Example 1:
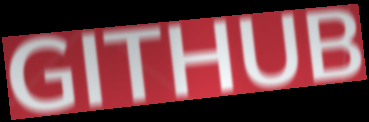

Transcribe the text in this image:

GITHUB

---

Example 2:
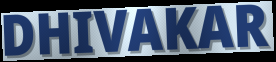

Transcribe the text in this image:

DHIVAKAR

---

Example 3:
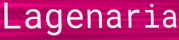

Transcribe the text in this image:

Lagenaria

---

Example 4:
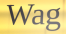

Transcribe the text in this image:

Wag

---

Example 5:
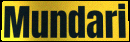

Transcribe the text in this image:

Mundari